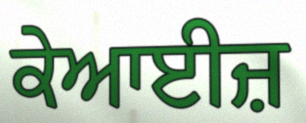
ਕੇਆਈਜ਼